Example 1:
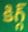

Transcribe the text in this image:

కిగ్గ్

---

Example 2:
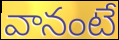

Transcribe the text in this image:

వానంటే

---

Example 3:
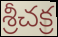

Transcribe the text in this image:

శ్రీచక్ర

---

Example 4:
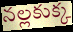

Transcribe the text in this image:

నల్లకుక్క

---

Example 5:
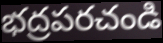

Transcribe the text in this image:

భద్రపరచండి